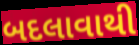
બદલાવાથી